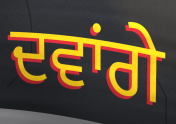
ਦਵਾਂਗੇ